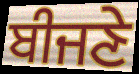
ਬੀਜਣੇ